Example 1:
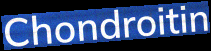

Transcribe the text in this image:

Chondroitin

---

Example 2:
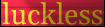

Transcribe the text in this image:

luckless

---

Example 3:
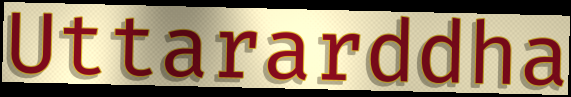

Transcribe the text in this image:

Uttararddha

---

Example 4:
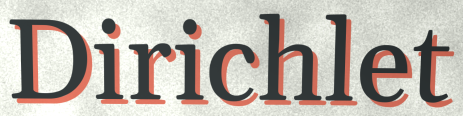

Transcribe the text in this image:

Dirichlet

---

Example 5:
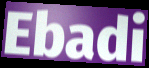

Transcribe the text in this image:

Ebadi